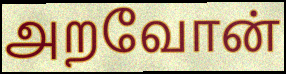
அறவோன்